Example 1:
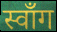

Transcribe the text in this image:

स्वाँग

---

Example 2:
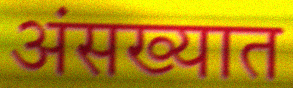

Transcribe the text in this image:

अंसख्यात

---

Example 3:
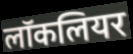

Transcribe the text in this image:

लॉकलियर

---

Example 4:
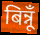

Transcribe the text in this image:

बिन्नूँ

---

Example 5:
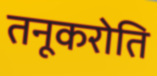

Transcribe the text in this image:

तनूकरोति